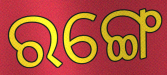
ରଙ୍ଗେ